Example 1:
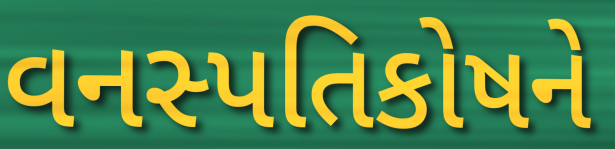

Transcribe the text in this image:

વનસ્પતિકોષને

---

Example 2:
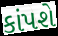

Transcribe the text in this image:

કાંપશે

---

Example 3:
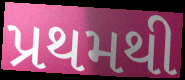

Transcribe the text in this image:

પ્રથમથી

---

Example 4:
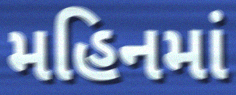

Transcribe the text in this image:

મહિનમાં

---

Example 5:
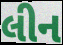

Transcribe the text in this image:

લીન